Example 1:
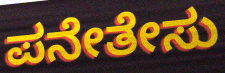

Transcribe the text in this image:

ಪನೇತೇಸು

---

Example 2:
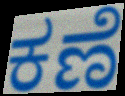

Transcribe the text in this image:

ಕಣೆ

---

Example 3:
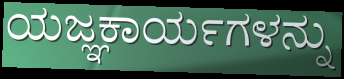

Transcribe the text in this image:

ಯಜ್ಞಕಾರ್ಯಗಳನ್ನು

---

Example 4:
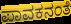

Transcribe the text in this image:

ಪಾವಕನಂತೆ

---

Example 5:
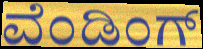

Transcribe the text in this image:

ವೆಂಡಿಂಗ್